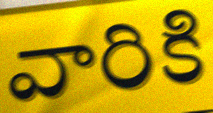
వారికి